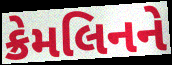
ક્રેમલિનને